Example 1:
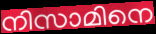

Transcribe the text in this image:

നിസാമിനെ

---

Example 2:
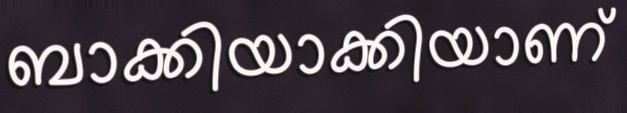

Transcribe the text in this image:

ബാക്കിയാക്കിയാണ്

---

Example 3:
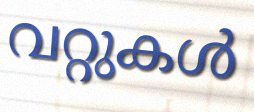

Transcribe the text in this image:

വറ്റുകൾ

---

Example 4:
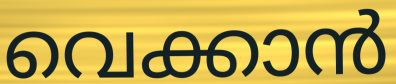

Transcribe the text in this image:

വെക്കാൻ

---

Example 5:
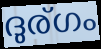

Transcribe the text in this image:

ദുര്ഗം